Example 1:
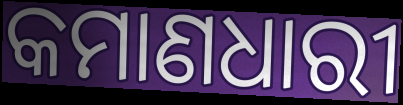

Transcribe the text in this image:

କମାଣଧାରୀ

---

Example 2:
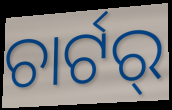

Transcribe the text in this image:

ଚାର୍ଟର୍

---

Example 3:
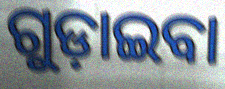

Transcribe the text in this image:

ଗୁଡ଼ାଇବା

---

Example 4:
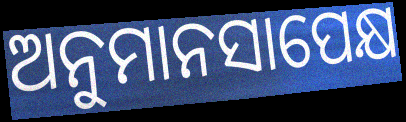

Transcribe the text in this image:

ଅନୁମାନସାପେକ୍ଷ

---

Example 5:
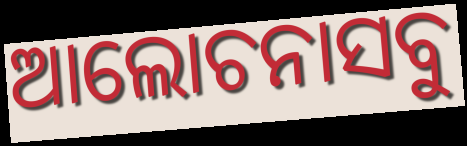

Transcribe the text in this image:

ଆଲୋଚନାସବୁ